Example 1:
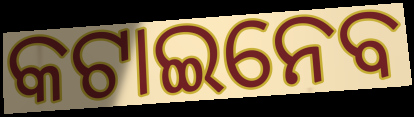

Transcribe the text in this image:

କଟାଇନେବ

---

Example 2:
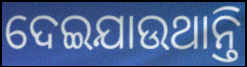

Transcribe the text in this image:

ଦେଇଯାଉଥାନ୍ତି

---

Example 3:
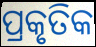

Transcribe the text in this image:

ପ୍ରକୃତିକ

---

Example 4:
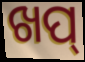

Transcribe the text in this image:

ଖପ୍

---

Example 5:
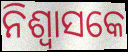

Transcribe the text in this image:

ନିଶ୍ଵାସକେ